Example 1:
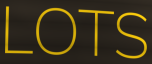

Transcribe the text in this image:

LOTS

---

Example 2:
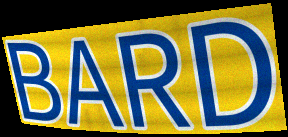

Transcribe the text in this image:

BARD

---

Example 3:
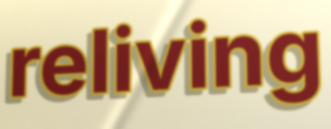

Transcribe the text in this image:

reliving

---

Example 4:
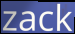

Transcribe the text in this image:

zack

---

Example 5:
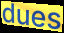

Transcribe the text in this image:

dues